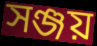
সঞ্জয়